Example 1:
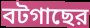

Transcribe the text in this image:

বটগাছের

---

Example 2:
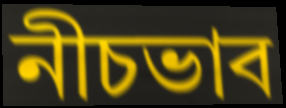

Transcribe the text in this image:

নীচভাব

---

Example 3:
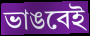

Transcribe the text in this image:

ভাঙবেই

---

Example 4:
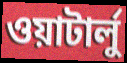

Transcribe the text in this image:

ওয়াটার্লু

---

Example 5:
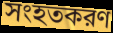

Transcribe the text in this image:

সংহতকরণ